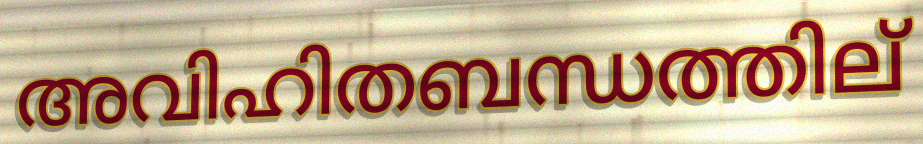
അവിഹിതബന്ധത്തില്